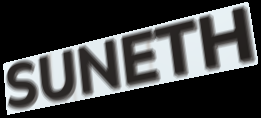
SUNETH